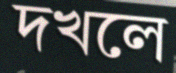
দখলে